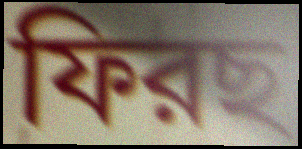
ফিরছ